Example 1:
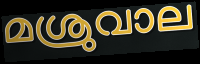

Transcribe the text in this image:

മശ്രുവാല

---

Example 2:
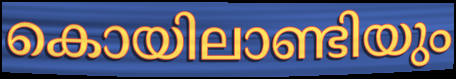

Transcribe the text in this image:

കൊയിലാണ്ടിയും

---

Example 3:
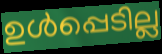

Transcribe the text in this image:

ഉൾപ്പെടില്ല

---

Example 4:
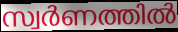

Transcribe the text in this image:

സ്വർണത്തിൽ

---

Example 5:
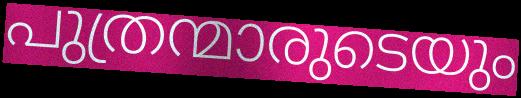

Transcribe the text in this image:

പുത്രന്മാരുടെയും